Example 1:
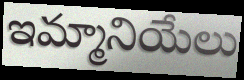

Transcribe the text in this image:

ఇమ్మానియేలు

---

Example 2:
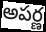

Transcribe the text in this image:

అపర్ణ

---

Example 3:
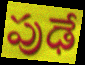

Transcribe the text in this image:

పుఢే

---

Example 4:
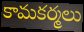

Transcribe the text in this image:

కామకర్మలు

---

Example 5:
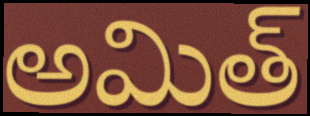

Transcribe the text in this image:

అమిత్